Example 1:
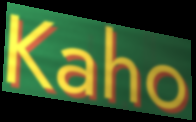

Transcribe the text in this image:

Kaho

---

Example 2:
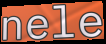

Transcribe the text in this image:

nele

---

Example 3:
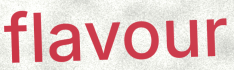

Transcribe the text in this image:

flavour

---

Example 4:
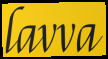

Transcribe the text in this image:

lavva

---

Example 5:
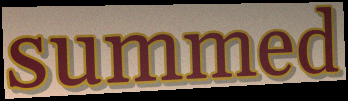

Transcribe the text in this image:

summed